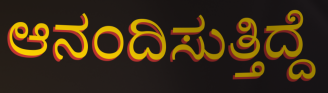
ಆನಂದಿಸುತ್ತಿದ್ದೆ